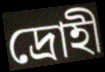
দ্রোহী